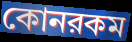
কোনরকম